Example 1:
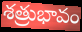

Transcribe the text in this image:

శత్రుభావం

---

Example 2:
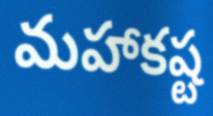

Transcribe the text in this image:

మహాకష్ట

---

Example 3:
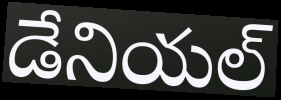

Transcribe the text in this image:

డేనియల్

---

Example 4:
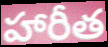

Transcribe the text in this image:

హారీత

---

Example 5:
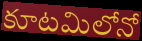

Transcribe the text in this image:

కూటమిలోనో